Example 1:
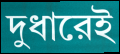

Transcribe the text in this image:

দুধারেই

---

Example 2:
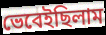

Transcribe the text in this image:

ভেবেইছিলাম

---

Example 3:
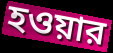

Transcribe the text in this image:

হওয়ার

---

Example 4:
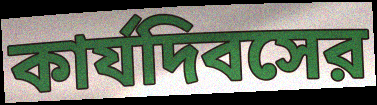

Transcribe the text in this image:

কার্যদিবসের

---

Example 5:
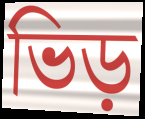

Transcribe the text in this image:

ভিড়